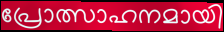
പ്രോത്സാഹനമായി